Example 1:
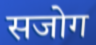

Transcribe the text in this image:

सजोग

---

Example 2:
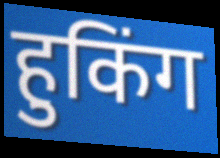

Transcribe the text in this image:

हुकिंग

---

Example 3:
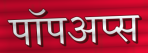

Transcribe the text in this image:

पॉपअप्स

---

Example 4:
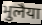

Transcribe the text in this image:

भुलैया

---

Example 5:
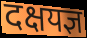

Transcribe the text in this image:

दक्षयज्ञ